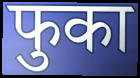
फुका